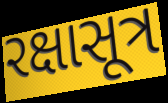
રક્ષાસૂત્ર